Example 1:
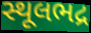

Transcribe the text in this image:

સ્થૂલભદ્ર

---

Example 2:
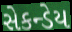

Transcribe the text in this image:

સેકન્ડેય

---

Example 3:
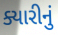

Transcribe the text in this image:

ક્યારીનું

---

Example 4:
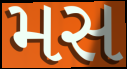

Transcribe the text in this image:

મસ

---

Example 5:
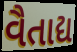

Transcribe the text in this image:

વૈતાદ્ય